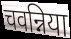
चवन्निया